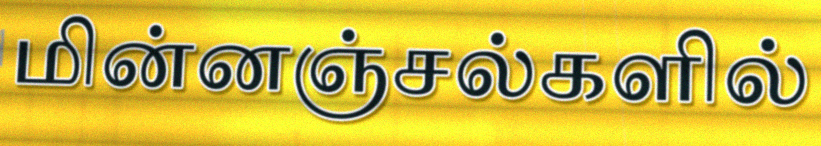
மின்னஞ்சல்களில்